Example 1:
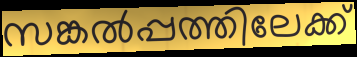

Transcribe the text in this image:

സങ്കൽപ്പത്തിലേക്ക്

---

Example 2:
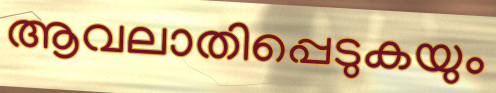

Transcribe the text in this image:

ആവലാതിപ്പെടുകയും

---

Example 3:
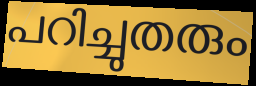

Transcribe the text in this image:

പറിച്ചുതരും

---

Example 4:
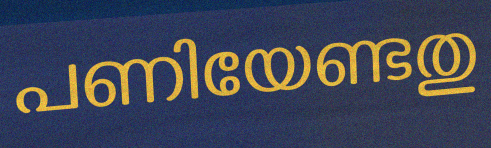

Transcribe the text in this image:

പണിയേണ്ടതു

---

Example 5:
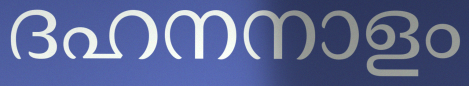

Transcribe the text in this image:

ദഹനനാളം